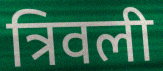
त्रिवली